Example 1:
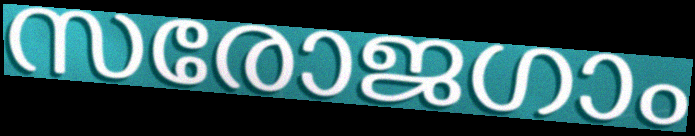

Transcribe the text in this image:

സരോജഗാം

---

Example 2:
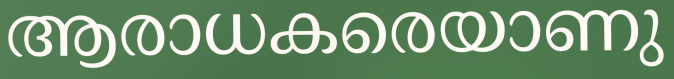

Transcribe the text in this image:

ആരാധകരെയാണു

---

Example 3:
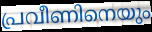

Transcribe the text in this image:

പ്രവീണിനെയും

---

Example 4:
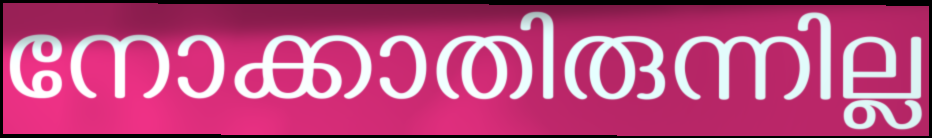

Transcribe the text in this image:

നോക്കാതിരുന്നില്ല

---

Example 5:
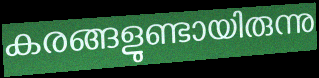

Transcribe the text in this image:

കരങ്ങളുണ്ടായിരുന്നു